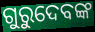
ଗୁରୁଦେବଙ୍କ